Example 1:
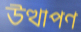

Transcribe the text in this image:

উত্থাপণ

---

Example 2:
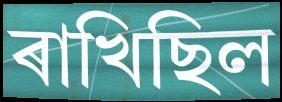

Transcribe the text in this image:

ৰাখিছিল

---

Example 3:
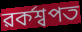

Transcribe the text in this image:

ৱৰ্কশ্বপত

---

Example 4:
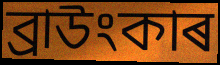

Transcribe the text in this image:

ব্ৰাউংকাৰ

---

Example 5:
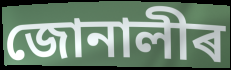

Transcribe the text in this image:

জোনালীৰ